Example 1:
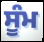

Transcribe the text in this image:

ਸੂੰਮ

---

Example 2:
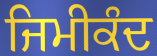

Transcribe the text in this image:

ਜਿਮੀਕੰਦ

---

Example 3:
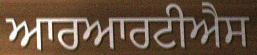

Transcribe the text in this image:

ਆਰਆਰਟੀਐਸ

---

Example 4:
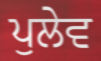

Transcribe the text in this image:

ਪੁਲੇਵ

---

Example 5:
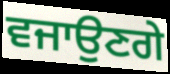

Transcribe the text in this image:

ਵਜਾਉਣਗੇ